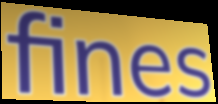
fines